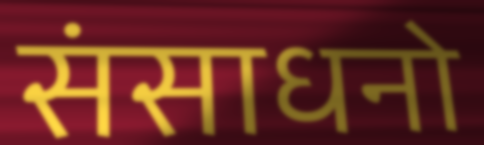
संसाधनो